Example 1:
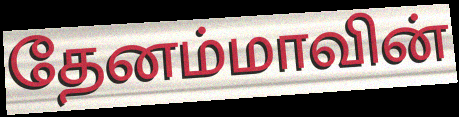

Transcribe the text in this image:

தேனம்மாவின்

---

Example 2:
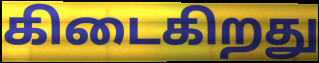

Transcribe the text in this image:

கிடைகிறது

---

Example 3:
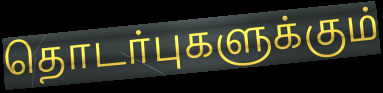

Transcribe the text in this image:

தொடர்புகளுக்கும்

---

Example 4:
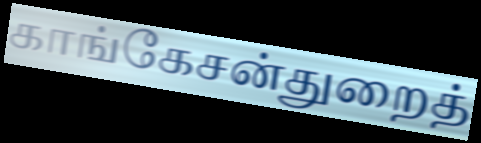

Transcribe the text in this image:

காங்கேசன்துறைத்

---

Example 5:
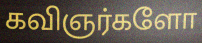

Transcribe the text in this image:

கவிஞர்களோ